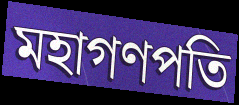
মহাগণপতি